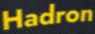
Hadron